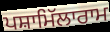
ਪਸ਼ਾਮਿੱਲਾਰਾਮ